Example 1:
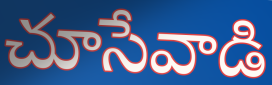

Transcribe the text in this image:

చూసేవాడి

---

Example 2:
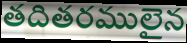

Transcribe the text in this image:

తదితరములైన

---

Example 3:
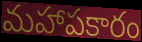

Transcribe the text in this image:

మహాపకారం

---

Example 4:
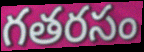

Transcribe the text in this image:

గతరసం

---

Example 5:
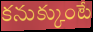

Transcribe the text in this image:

కనుక్కుంటే